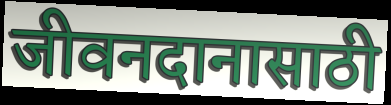
जीवनदानासाठी